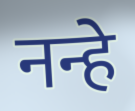
नन्हे